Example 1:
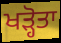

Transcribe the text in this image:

ਖੜ੍ਹੋਤਾ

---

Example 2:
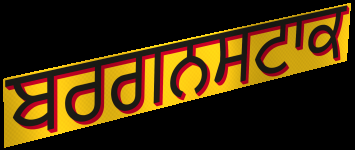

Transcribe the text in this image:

ਬਰਗਨਸਟਾਕ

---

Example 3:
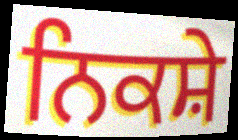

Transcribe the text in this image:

ਨਿਕਸ਼ੇ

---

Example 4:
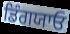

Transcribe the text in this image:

ਡਿੰਗਯਾਓ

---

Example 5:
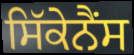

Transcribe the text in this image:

ਸਿੱਕੇਨੈਂਸ